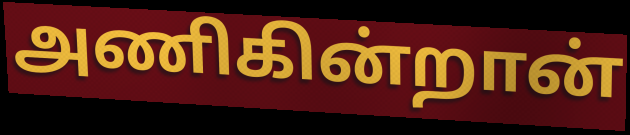
அணிகின்றான்